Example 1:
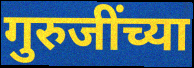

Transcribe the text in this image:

गुरुजींच्या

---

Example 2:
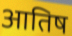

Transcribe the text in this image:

आतिष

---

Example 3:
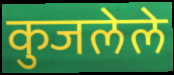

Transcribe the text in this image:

कुजलेले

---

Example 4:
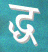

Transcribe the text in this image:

द्ध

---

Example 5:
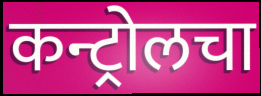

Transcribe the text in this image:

कन्ट्रोलचा